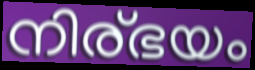
നിര്ഭയം